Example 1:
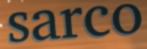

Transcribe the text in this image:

sarco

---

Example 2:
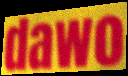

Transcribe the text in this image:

dawo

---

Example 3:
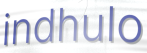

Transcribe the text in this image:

indhulo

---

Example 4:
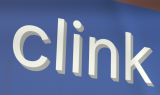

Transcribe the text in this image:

clink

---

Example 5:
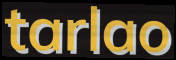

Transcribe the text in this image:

tarlao